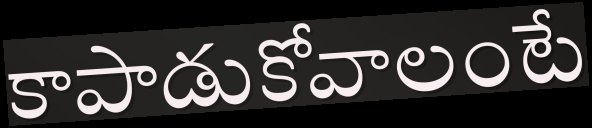
కాపాడుకోవాలంటే